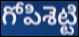
గోపిశెట్టి